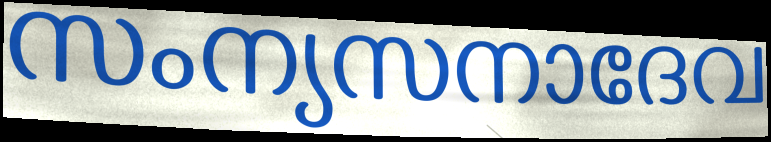
സംന്യസനാദേവ